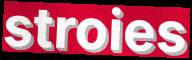
stroies